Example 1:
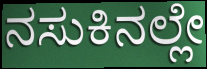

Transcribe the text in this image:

ನಸುಕಿನಲ್ಲೇ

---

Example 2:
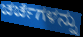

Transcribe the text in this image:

ಚರ್ಚೆಗಳನ್ನು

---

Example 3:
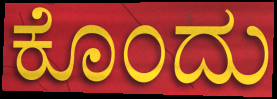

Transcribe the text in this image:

ಕೊಂದು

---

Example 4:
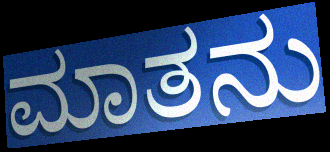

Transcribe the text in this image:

ಮಾತನು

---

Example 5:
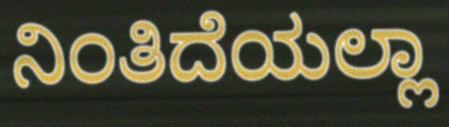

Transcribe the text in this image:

ನಿಂತಿದೆಯಲ್ಲಾ